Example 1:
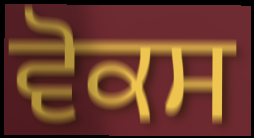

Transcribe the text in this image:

ਵੋਕਸ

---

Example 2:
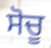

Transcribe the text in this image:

ਸੋਚੂ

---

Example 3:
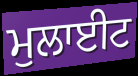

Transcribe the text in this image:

ਮੁਲਾਈਟ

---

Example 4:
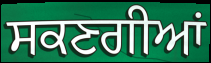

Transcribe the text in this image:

ਸਕਣਗੀਆਂ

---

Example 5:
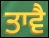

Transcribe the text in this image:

ਤਾਵੈ